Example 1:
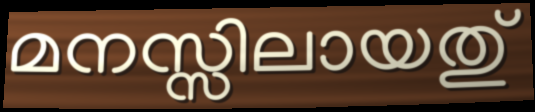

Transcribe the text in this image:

മനസ്സിലായതു്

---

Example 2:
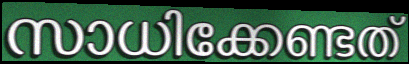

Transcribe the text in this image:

സാധിക്കേണ്ടത്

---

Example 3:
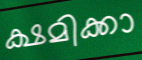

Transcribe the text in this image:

ക്ഷമിക്കാ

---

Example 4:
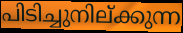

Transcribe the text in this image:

പിടിച്ചുനില്ക്കുന്ന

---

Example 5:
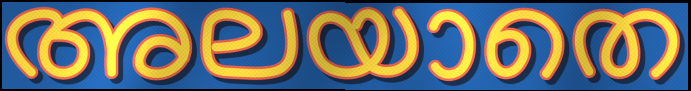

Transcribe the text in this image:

അലയാതെ